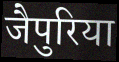
जैपुरिया